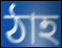
ঠাহ